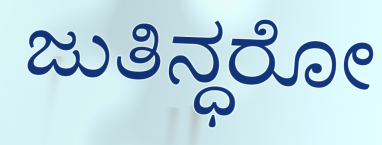
ಜುತಿನ್ಧರೋ